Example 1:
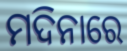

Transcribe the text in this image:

ମଦିନାରେ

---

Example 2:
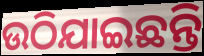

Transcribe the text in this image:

ଉଠିଯାଇଛନ୍ତି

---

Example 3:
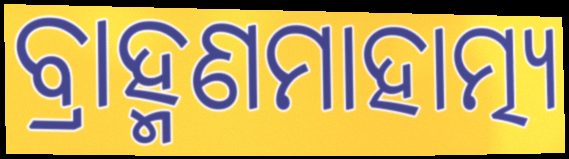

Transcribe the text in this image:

ବ୍ରାହ୍ମଣମାହାତ୍ମ୍ୟ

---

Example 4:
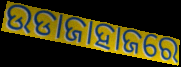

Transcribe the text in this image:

ଉଡାଜାହାଜରେ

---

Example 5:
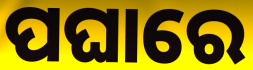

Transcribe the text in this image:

ପଘାରେ